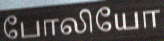
போலியோ